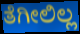
ತೆಗೀಲಿಲ್ಲ